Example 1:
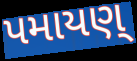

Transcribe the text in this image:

પમાયણ્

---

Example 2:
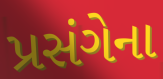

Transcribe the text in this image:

પ્રસંગેના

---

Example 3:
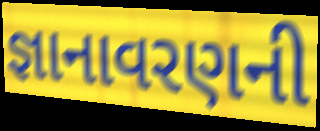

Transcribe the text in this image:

જ્ઞાનાવરણની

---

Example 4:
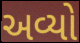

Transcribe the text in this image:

અવ્યો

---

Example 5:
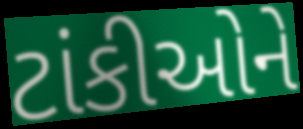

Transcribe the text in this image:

ટાંકીઓને